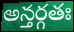
అన్తర్గతః